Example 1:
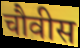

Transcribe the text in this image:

चौवीस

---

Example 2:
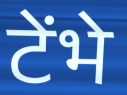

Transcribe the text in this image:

टेंभे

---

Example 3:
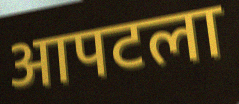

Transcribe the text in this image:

आपटला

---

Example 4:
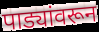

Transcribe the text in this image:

पाड्यांवरून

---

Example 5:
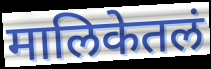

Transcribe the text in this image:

मालिकेतलं